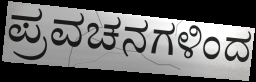
ಪ್ರವಚನಗಳಿಂದ